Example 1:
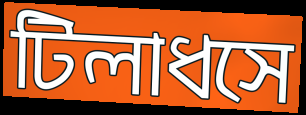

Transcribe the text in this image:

টিলাধসে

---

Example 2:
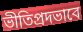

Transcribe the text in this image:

ভীতিপ্রদভাবে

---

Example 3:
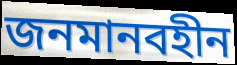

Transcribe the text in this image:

জনমানবহীন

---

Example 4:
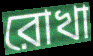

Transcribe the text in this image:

রোখা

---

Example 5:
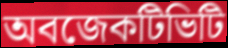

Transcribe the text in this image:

অবজেকটিভিটি